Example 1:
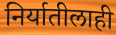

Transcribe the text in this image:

निर्यातीलाही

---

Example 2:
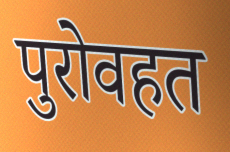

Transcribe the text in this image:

पुरोवहत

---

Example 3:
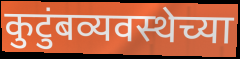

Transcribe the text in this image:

कुटुंबव्यवस्थेच्या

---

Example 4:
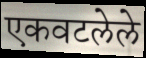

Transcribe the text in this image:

एकवटलेले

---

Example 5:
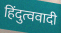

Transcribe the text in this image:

हिंदुत्ववादी